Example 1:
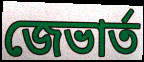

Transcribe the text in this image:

জেভার্ত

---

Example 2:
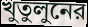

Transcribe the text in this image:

খুতুলুনের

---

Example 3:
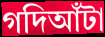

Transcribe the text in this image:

গদিআঁটা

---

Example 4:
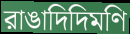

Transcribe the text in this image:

রাঙাদিদিমণি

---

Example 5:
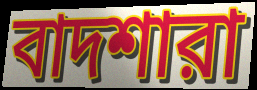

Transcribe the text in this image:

বাদশারা